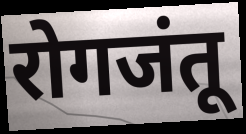
रोगजंतू